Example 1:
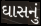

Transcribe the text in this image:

ઘાસનું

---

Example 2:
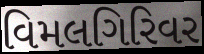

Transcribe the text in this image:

વિમલગિરિવર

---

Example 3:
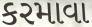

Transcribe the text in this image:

કરમાવા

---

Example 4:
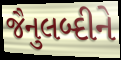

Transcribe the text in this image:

જૈનુલબ્દીને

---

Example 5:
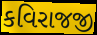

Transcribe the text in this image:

કવિરાજજી